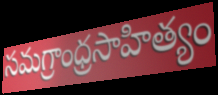
సమగ్రాంధ్రసాహిత్యం